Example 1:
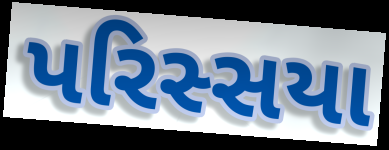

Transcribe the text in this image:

પરિસ્સયા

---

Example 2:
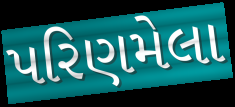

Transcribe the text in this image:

પરિણમેલા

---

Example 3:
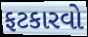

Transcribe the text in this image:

ફટકારવો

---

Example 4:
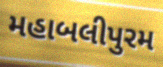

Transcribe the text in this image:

મહાબલીપુરમ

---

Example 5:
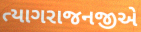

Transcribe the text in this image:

ત્યાગરાજનજીએ